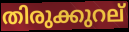
തിരുക്കുറല്